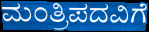
ಮಂತ್ರಿಪದವಿಗೆ